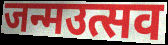
जन्मउत्सव